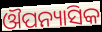
ଔପନ୍ୟାସିକ